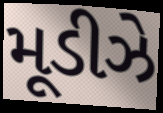
મૂડીઝે